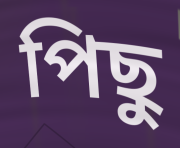
পিছু